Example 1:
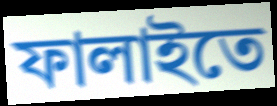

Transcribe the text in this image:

ফালাইতে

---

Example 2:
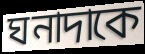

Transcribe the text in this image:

ঘনাদাকে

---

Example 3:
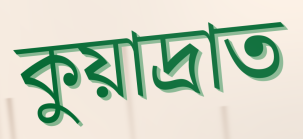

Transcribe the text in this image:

কুয়াদ্রাত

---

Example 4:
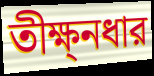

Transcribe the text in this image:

তীক্ষ্নধার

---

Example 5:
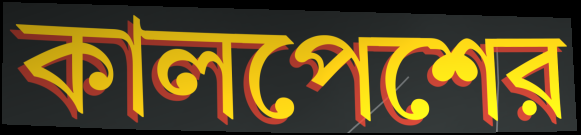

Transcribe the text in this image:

কালপেশের